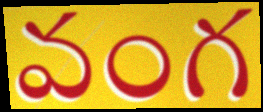
వంగ